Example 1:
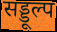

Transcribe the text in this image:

सड्डूल्प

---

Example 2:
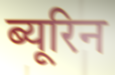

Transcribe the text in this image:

ब्यूरिन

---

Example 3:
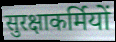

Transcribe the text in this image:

सुरक्षाकर्मियों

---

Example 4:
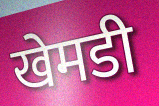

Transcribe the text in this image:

खेमडी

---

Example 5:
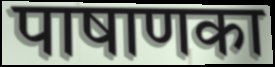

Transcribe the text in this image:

पाषाणका